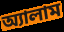
অ্যালাম